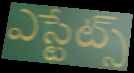
ఎస్టేట్స్